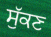
ਸੁੱਕਣ